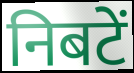
निबटें